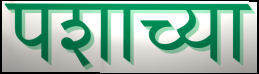
पशाच्या